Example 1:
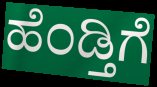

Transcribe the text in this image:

ಹೆಂಡ್ತಿಗೆ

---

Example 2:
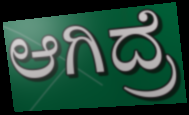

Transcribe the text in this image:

ಆಗಿದ್ರೆ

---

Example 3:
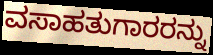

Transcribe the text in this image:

ವಸಾಹತುಗಾರರನ್ನು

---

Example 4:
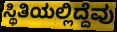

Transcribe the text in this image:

ಸ್ಥಿತಿಯಲ್ಲಿದ್ದೆವು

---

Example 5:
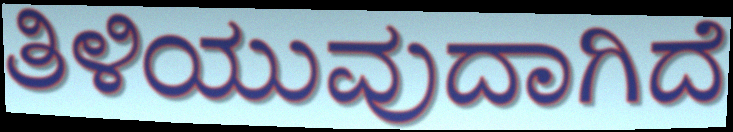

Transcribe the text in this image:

ತಿಳಿಯುವುದಾಗಿದೆ